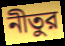
নীতুর